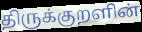
திருக்குறளின்